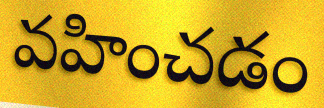
వహించడం